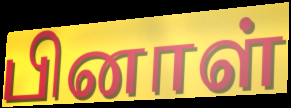
பினாள்